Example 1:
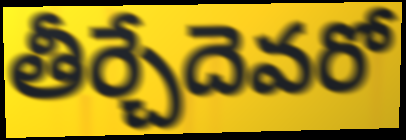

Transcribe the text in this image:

తీర్చేదెవరో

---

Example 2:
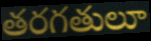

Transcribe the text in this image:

తరగతులూ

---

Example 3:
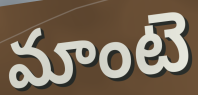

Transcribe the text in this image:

మాంటె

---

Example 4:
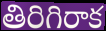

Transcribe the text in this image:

తిరిగిరాక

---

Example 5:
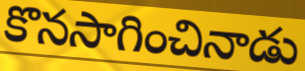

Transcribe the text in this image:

కొనసాగించినాడు